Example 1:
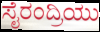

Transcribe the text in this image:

ಸೈರಂದ್ರಿಯು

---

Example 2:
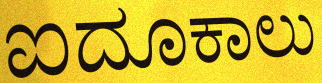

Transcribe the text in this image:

ಐದೂಕಾಲು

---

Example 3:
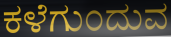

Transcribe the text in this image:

ಕಳೆಗುಂದುವ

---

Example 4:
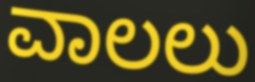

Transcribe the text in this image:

ವಾಲಲು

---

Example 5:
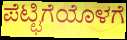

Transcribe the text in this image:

ಪೆಟ್ಟಿಗೆಯೊಳಗೆ